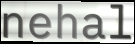
nehal